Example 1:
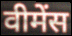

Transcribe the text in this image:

वीमेंस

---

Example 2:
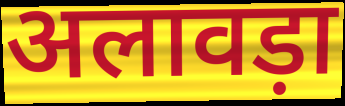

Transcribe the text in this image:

अलावड़ा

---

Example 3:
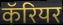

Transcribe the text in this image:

कॅरियर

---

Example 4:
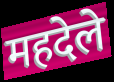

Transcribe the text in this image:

महदेले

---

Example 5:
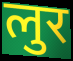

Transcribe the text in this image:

लुर